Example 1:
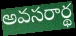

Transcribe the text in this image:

అవసరార్థ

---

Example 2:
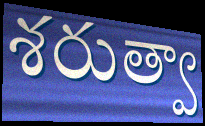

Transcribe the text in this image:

శరుత్వా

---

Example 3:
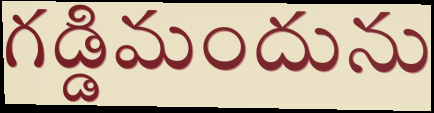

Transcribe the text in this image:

గడ్డిమందును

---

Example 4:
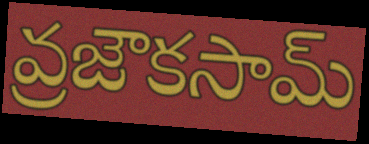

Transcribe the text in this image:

వ్రజౌకసామ్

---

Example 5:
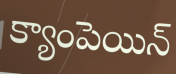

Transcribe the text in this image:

క్యాంపెయిన్